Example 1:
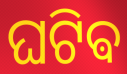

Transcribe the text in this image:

ଘଟିଵ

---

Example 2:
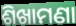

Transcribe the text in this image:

ଶିଖାମଣା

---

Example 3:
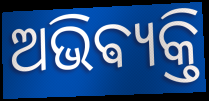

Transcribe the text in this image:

ଅଭିଵ୍ୟକ୍ତି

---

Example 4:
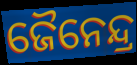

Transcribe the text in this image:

ଜୈନେନ୍ଦ୍ର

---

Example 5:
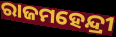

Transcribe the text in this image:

ରାଜମହେନ୍ଦ୍ରୀ